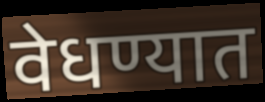
वेधण्यात